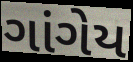
ગાંગેય